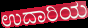
ಉದಾರಿಯ